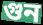
গুন